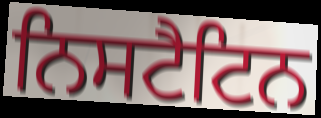
ਨਿਸਟੈਟਿਨ